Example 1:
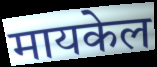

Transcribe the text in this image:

मायकेल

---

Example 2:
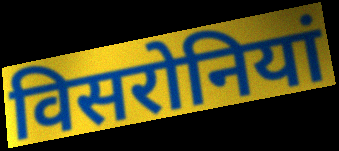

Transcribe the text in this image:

विसरोनियां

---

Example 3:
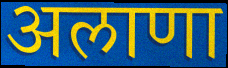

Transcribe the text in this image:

अलाणा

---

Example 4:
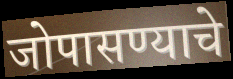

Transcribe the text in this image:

जोपासण्याचे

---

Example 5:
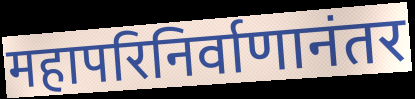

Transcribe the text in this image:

महापरिनिर्वाणानंतर